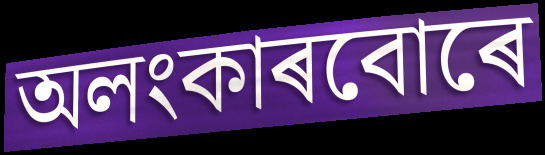
অলংকাৰবোৰে